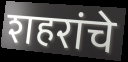
शहरांचे